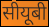
सीयूबी